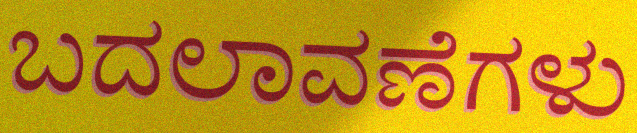
ಬದಲಾವಣೆಗಳು